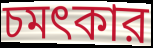
চমৎকার